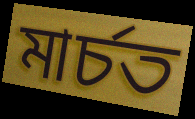
মাৰ্চত